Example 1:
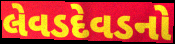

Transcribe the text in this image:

લેવડદેવડનો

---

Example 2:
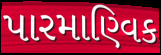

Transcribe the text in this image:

પારમાણ્વિક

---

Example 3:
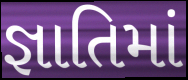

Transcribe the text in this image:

જ્ઞાતિમાં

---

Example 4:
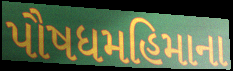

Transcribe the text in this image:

પૌષધમહિમાના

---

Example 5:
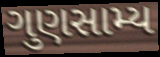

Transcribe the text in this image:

ગુણસામ્ય